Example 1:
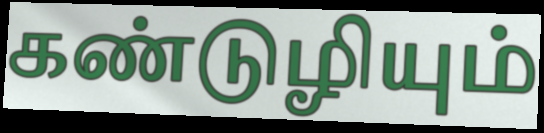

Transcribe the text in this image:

கண்டுழியும்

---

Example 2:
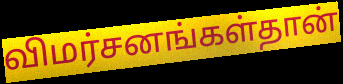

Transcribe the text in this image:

விமர்சனங்கள்தான்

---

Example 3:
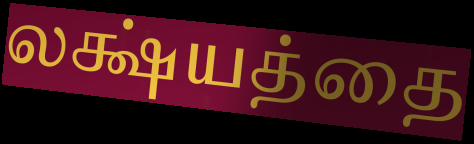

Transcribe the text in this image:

லக்ஷ்யத்தை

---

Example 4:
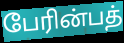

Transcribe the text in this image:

பேரின்பத்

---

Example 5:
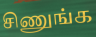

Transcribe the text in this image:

சிணுங்க